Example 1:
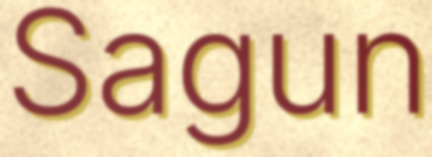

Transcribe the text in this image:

Sagun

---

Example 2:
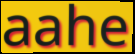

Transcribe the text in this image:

aahe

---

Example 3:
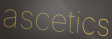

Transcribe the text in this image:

ascetics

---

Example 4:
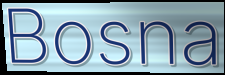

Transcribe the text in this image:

Bosna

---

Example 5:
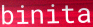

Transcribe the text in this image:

binita